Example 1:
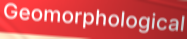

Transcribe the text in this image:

Geomorphological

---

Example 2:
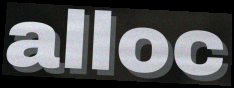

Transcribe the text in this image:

alloc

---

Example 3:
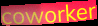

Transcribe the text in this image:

coworker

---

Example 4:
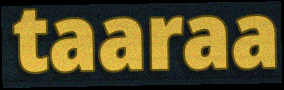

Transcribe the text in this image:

taaraa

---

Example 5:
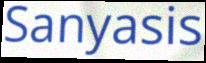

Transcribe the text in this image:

Sanyasis